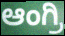
ಆಂಗ್ರಿ